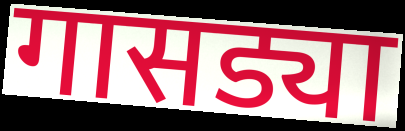
गासड्या